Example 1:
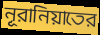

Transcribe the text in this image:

নূরানিয়াতের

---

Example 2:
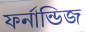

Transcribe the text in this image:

ফর্নান্ডিজ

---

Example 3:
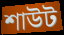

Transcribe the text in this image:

শাউট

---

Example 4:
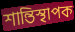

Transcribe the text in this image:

শান্তিস্থাপক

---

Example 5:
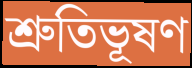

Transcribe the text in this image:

শ্রুতিভূষণ